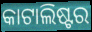
କାଟାଲିଷ୍ଟର